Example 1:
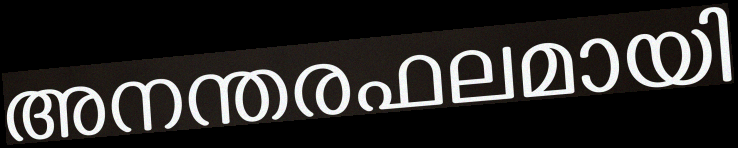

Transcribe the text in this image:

അനന്തരഫലമായി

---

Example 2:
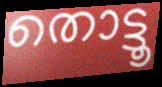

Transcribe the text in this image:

തൊട്ടൂ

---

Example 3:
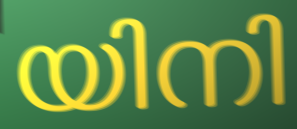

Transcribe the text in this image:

യിനി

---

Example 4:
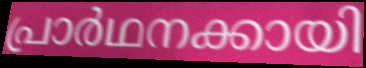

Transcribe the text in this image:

പ്രാർഥനക്കായി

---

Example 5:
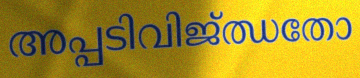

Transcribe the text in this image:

അപ്പടിവിജ്ഝതോ